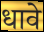
धावे